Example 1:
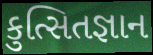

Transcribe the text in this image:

કુત્સિતજ્ઞાન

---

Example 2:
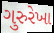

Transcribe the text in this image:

ગુરુરેખા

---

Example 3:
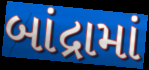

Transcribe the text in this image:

બાંદ્રામાં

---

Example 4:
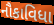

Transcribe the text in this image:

નૌકાવિધા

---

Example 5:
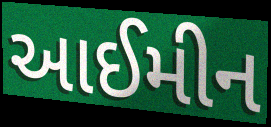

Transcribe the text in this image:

આઈમીન